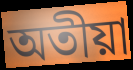
অতীয়া